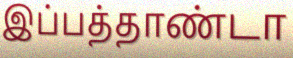
இப்பத்தாண்டா